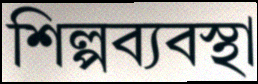
শিল্পব্যবস্থা